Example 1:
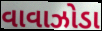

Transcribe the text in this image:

વાવાઝોડા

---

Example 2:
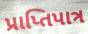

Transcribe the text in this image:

પ્રાપ્તિપાત્ર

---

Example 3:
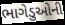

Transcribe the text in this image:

ભાગેડુઓની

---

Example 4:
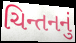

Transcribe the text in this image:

ચિન્તનનું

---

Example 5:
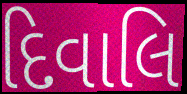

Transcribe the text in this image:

દિવાલિ